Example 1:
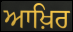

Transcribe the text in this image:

ਆਖ਼ਿਰ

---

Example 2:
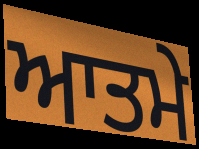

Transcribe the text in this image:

ਆਤਮੇ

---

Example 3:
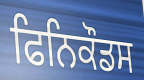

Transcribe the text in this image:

ਫਿਨਿਕੌਡਸ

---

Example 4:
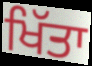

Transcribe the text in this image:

ਖਿੱਤਾ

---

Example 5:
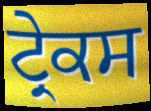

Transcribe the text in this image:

ਟ੍ਰੇਕਸ